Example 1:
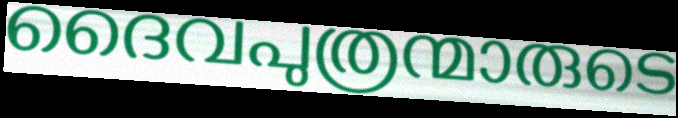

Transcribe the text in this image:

ദൈവപുത്രന്മാരുടെ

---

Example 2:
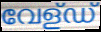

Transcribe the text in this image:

വേള്ഡ്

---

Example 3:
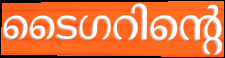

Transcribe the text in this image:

ടൈഗറിന്റെ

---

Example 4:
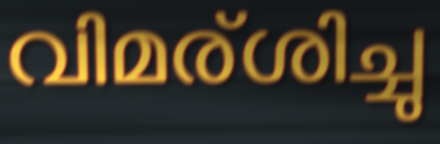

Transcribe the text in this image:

വിമര്ശിച്ചു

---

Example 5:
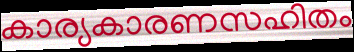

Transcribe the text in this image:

കാര്യകാരണസഹിതം